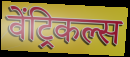
वेंट्रिकल्स